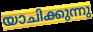
യാചിക്കുന്നു